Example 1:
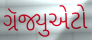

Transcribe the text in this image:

ગ્રૅજ્યુએટો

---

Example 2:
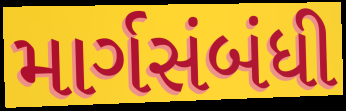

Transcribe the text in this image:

માર્ગસંબંધી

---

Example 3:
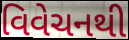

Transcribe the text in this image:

વિવેચનથી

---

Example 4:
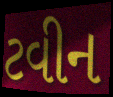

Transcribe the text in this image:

ટવીન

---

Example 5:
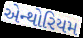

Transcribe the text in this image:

એન્થોરિયમ